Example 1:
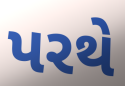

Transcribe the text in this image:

પરથે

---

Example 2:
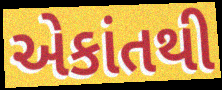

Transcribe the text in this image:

એકાંતથી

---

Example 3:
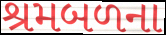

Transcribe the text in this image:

શ્રમબળના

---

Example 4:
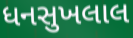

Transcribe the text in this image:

ધનસુખલાલ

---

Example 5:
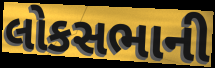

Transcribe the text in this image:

લોકસભાની